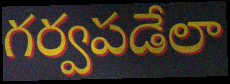
గర్వపడేలా